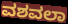
ವಶವಲಾ